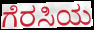
ಗೆರಸಿಯ